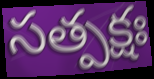
సత్పక్షః